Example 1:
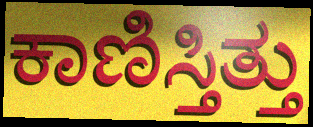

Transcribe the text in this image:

ಕಾಣಿಸ್ತಿತ್ತು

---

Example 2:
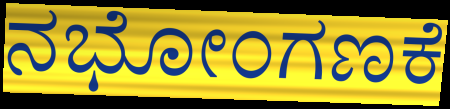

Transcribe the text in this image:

ನಭೋಂಗಣಕೆ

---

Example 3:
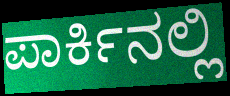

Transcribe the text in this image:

ಪಾರ್ಕಿನಲ್ಲಿ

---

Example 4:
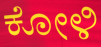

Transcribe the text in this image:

ಕೋಳಿ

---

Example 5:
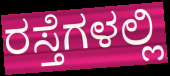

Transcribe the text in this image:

ರಸ್ತೆಗಳಲ್ಲಿ